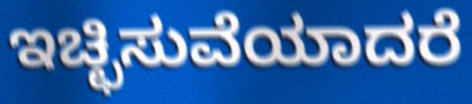
ಇಚ್ಛಿಸುವೆಯಾದರೆ